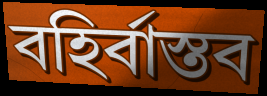
বহির্বাস্তব